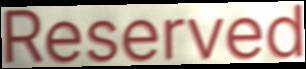
Reserved